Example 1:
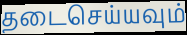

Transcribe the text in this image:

தடைசெய்யவும்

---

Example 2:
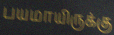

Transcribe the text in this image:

பயமாயிருக்கு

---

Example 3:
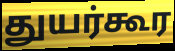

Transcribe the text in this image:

துயர்கூர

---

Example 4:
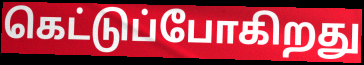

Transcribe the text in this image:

கெட்டுப்போகிறது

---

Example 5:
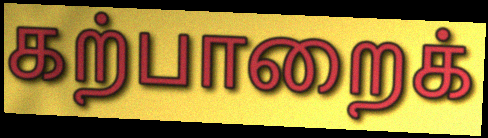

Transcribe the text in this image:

கற்பாறைக்